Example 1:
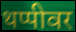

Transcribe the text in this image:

थप्पीवर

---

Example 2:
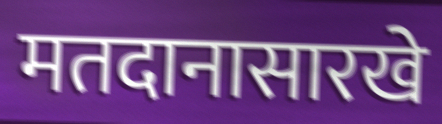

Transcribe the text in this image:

मतदानासारखे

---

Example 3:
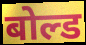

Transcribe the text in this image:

बोल्ड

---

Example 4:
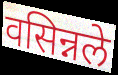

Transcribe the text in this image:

वसिन्नले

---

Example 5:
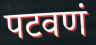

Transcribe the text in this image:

पटवणं